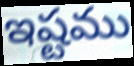
ఇష్టము